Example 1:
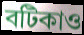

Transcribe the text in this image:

বটিকাও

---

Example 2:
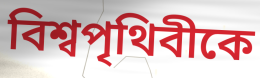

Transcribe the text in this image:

বিশ্বপৃথিবীকে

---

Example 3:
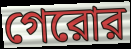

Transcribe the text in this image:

গেরোর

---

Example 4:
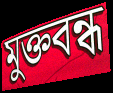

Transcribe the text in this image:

মুক্তবন্ধ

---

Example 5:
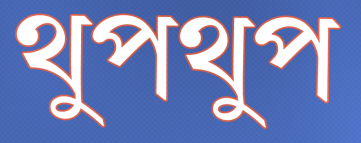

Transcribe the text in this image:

থুপথুপ